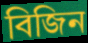
বিজিন